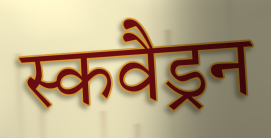
स्कवैड्रन